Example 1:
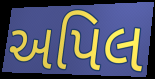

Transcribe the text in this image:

અપિલ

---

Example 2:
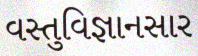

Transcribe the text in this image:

વસ્તુવિજ્ઞાનસાર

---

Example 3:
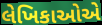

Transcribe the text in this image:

લેખિકાઓએ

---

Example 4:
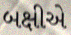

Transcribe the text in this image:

બક્ષીએ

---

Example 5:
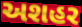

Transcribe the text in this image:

અશહર